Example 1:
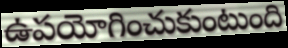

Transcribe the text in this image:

ఉపయోగించుకుంటుంది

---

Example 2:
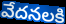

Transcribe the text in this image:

వేదనలకి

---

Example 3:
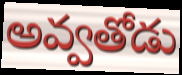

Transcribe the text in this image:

అవ్వతోడు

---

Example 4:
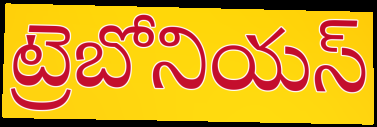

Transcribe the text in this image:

ట్రెబోనియస్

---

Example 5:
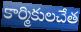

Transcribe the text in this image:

కార్మికులచేత